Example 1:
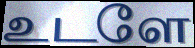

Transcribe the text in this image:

உடளே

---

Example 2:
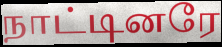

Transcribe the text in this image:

நாட்டினரே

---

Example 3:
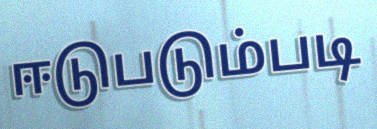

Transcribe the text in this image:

ஈடுபடும்படி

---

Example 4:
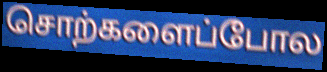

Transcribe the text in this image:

சொற்களைப்போல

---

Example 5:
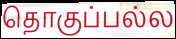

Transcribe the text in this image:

தொகுப்பல்ல